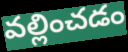
వల్లించడం